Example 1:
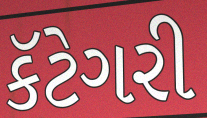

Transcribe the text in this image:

કૅટેગરી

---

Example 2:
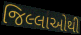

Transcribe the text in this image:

જિલ્લાઓથી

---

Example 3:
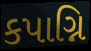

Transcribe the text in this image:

કપાગ્નિ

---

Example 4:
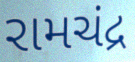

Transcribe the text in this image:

રામચંદ્ર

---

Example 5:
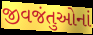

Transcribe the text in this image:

જીવજંતુઓનાં